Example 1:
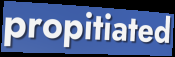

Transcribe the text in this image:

propitiated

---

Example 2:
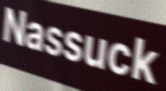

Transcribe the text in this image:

Nassuck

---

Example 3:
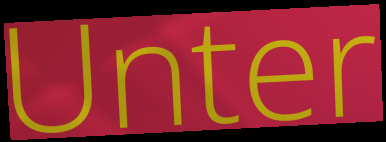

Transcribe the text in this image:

Unter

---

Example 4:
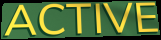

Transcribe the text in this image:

ACTIVE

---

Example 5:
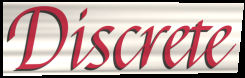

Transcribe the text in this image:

Discrete